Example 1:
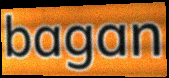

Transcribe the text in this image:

bagan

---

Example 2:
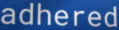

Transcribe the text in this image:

adhered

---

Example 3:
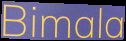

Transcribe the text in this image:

Bimala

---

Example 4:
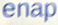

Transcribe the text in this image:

enap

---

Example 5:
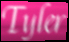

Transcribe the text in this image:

Tyler